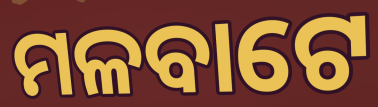
ମଳବାଟେ